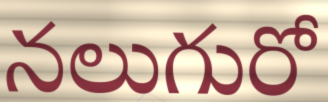
నలుగురో